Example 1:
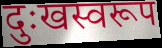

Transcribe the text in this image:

दुःखस्वरूप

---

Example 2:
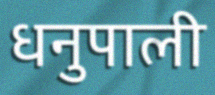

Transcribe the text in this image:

धनुपाली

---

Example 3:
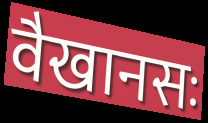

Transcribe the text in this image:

वैखानसः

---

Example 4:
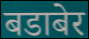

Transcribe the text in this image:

बडाबेर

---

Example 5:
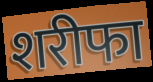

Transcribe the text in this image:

शरीफा